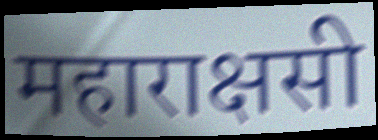
महाराक्षसी